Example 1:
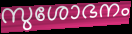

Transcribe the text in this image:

സുശോഭനം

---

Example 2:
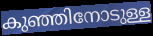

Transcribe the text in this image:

കുഞ്ഞിനോടുള്ള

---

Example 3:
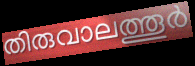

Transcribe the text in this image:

തിരുവാലത്തൂർ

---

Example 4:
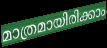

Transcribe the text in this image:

മാത്രമായിരിക്കാം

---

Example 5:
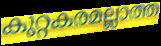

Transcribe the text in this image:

കുറ്റകരമല്ലാത്ത